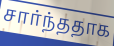
சார்ந்ததாக